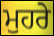
ਮੁਹਰੇ